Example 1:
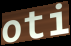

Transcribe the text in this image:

oti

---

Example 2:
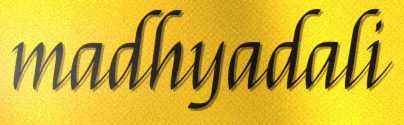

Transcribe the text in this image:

madhyadali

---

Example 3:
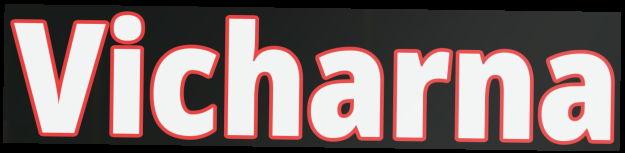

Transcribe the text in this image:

Vicharna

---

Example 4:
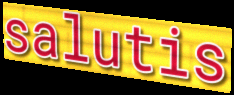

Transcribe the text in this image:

salutis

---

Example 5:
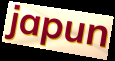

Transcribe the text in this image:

japun